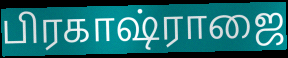
பிரகாஷ்ராஜை